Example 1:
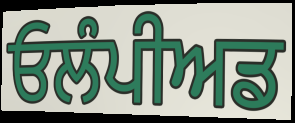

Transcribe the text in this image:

ਓਲੰਪੀਅਡ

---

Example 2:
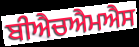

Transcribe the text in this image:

ਬੀਐਚਐਮਐਸ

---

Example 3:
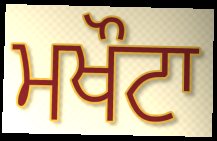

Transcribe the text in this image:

ਮਖੌਟਾ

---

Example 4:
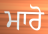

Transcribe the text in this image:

ਮਾਰੋ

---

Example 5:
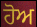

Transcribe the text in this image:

ਹੋਅ